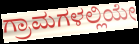
ಗ್ರಾಮಗಳಲ್ಲಿಯೇ